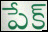
పేక్